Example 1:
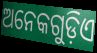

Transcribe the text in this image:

ଅନେକଗୁଡ଼ିଏ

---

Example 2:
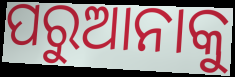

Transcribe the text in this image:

ପରୁଆନାକୁ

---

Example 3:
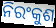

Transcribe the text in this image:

ନିରଂକୁଶ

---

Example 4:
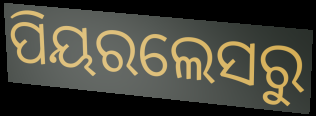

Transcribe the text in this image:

ପିୟରଲେସରୁ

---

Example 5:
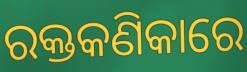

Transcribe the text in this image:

ରକ୍ତକଣିକାରେ